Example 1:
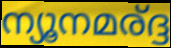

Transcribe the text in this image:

ന്യൂനമര്ദ്ദ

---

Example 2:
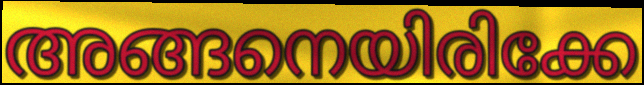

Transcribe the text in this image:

അങ്ങനെയിരിക്കേ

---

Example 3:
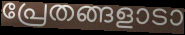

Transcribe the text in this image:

പ്രേതങ്ങളാടാ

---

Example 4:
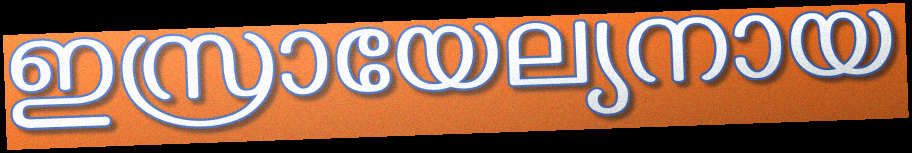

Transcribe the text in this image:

ഇസ്രായേല്യനായ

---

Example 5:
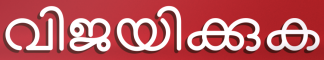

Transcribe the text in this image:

വിജയിക്കുക